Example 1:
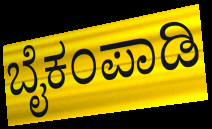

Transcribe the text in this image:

ಬೈಕಂಪಾಡಿ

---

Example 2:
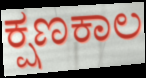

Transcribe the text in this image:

ಕ್ಷಣಕಾಲ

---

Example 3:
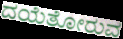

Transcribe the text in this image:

ದಯೆತೋರುವ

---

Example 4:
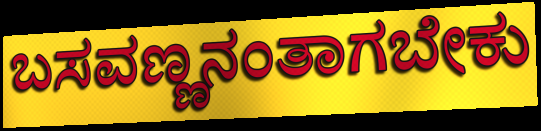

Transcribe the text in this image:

ಬಸವಣ್ಣನಂತಾಗಬೇಕು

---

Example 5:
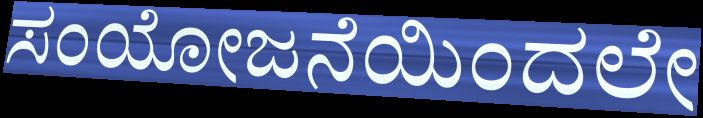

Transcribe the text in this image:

ಸಂಯೋಜನೆಯಿಂದಲೇ